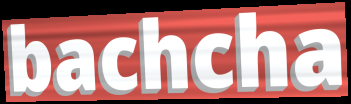
bachcha